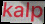
kalp